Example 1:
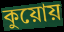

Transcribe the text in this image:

কুয়োয়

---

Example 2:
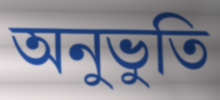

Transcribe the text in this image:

অনুভুতি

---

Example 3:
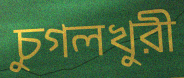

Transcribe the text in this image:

চুগলখুরী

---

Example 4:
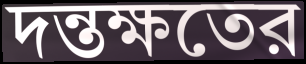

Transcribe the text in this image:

দন্তক্ষতের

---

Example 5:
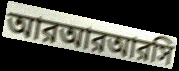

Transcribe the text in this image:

আরআরআরসি